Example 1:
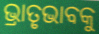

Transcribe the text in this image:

ଭ୍ରାତୃଭାବକୁ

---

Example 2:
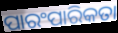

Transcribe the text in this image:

ପାରଂପାରିକତା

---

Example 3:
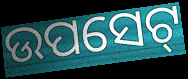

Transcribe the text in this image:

ଉପସେଟ୍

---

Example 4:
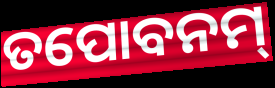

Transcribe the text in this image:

ତପୋବନମ୍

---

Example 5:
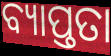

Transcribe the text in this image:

ବ୍ୟାପ୍ତତା